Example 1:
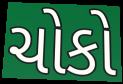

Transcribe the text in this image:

ચોકો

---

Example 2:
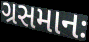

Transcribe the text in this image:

ગ્રસમાનઃ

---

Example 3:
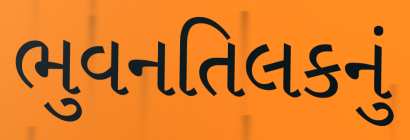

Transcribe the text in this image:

ભુવનતિલકનું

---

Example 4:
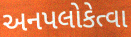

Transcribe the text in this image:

અનપલોકેત્વા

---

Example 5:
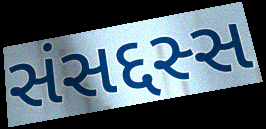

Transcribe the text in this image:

સંસદ્દસ્સ